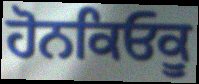
ਹੋਨਕਿਓਕੂ